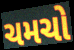
ચમચો